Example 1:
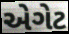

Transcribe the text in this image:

એગેટ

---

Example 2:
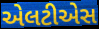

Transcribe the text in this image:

એલટીએસ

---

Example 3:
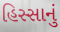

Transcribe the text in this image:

હિસ્સાનું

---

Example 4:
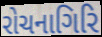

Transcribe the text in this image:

રોચનાગિરિ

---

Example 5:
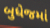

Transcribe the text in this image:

બુધેજમાં